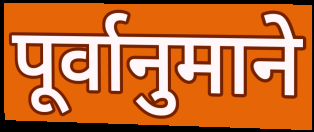
पूर्वानुमाने